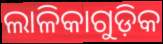
ଲାଳିକାଗୁଡ଼ିକ